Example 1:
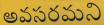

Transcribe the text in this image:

అవసరమని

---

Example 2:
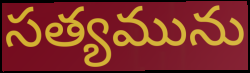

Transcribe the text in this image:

సత్యమును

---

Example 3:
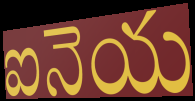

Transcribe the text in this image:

ఐనెయ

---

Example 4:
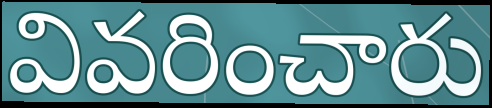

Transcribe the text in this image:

వివరించారు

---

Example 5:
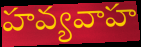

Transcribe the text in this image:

హవ్యవాహ